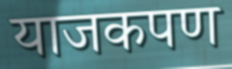
याजकपण